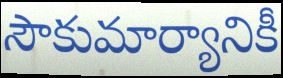
సౌకుమార్యానికీ